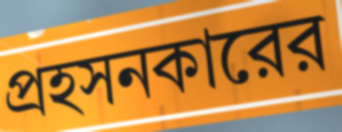
প্রহসনকারের